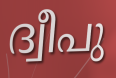
ദ്വീപു